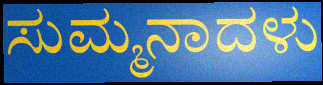
ಸುಮ್ಮನಾದಳು